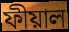
ফীয়াল